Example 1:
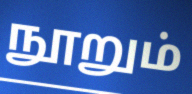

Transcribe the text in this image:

நூறும்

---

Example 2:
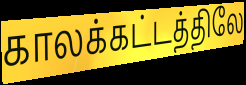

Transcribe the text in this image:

காலக்கட்டத்திலே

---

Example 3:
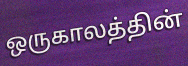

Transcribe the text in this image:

ஒருகாலத்தின்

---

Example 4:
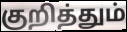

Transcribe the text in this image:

குறித்தும்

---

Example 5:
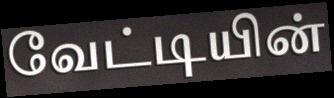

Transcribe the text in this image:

வேட்டியின்